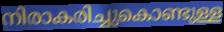
നിരാകരിച്ചുകൊണ്ടുള്ള